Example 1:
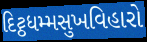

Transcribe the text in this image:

દિટ્ઠધમ્મસુખવિહારો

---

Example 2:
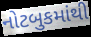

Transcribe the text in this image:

નોટબુકમાંથી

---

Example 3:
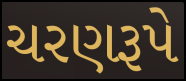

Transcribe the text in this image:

ચરણરૂપે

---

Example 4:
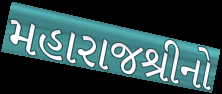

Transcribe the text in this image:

મહારાજશ્રીનો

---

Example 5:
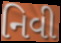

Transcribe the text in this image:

નિવી